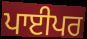
ਪਾਈਪਰ